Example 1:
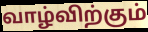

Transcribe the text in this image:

வாழ்விற்கும்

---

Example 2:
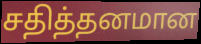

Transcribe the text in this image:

சதித்தனமான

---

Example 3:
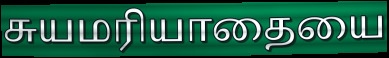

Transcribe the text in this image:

சுயமரியாதையை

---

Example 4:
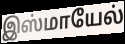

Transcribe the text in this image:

இஸ்மாயேல்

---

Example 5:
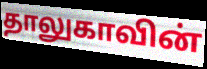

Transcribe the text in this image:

தாலுகாவின்